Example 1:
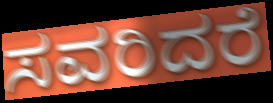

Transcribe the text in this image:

ಸವರಿದರೆ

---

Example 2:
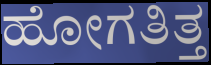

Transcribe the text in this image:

ಹೋಗತಿತ್ತ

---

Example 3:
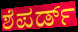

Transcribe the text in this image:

ಶೆಪರ್ಡ್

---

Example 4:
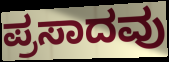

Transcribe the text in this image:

ಪ್ರಸಾದವು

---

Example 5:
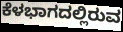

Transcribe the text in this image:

ಕೆಳಭಾಗದಲ್ಲಿರುವ